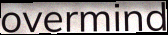
overmind